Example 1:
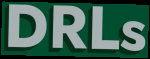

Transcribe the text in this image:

DRLs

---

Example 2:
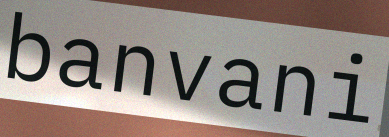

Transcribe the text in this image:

banvani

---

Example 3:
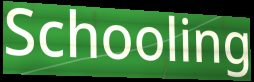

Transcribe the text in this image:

Schooling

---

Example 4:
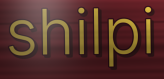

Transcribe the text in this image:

shilpi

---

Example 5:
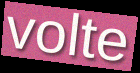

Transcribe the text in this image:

volte